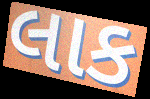
લાક